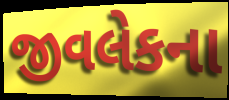
જીવલેકના